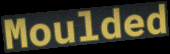
Moulded